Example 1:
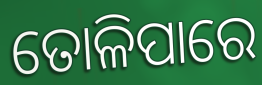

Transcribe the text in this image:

ତୋଳିପାରେ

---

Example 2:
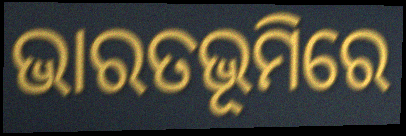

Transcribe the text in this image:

ଭାରତଭୂମିରେ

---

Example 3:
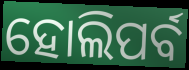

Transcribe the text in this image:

ହୋଲିପର୍ବ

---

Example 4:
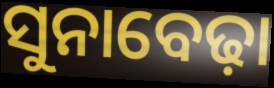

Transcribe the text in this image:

ସୁନାବେଢ଼ା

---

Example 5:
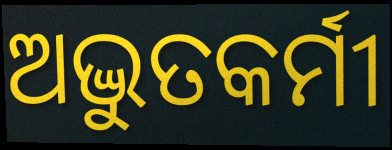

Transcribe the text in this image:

ଅଦ୍ଭୁତକର୍ମୀ